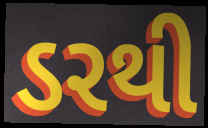
ડરથી